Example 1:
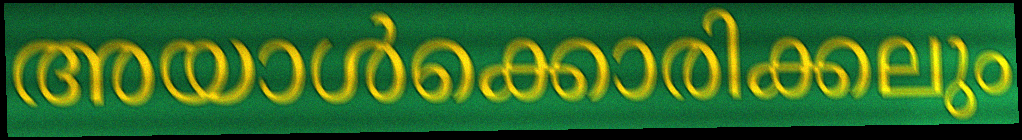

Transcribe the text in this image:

അയാൾക്കൊരിക്കലും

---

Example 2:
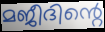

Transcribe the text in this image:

മജീദിന്റെ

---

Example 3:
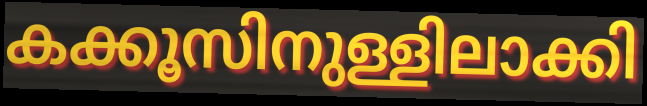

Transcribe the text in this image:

കക്കൂസിനുള്ളിലാക്കി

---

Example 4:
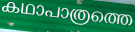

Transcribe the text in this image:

കഥാപാത്രത്തെ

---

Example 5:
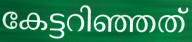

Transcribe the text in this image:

കേട്ടറിഞ്ഞത്